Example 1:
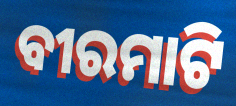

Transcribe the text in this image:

ବୀରମାଟି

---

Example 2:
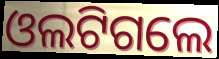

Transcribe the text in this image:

ଓଲଟିଗଲେ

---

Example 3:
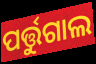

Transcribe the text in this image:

ପର୍ତ୍ତୁଗାଲ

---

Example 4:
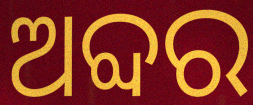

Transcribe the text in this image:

ଅବ୍ଦର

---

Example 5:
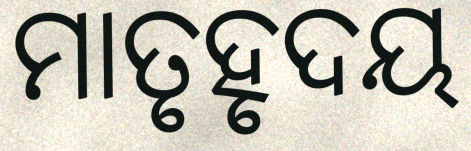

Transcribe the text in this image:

ମାତୃହୃଦୟ